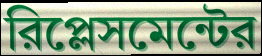
রিপ্লেসমেন্টের